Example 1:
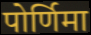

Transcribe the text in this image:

पोर्णिमा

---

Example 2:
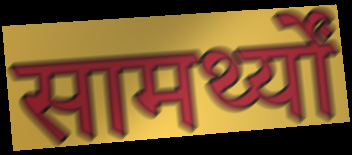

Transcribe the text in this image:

सामर्थ्यों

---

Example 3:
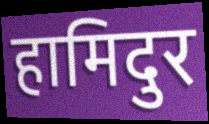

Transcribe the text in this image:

हामिदुर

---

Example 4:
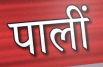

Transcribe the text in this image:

पालीं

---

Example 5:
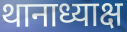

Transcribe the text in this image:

थानाध्याक्ष